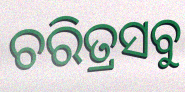
ଚରିତ୍ରସବୁ